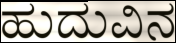
ಹುದುವಿನ